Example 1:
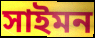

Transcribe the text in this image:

সাইমন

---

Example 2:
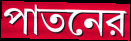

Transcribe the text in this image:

পাতনের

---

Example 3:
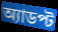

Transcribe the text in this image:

অ্যাডপ্ট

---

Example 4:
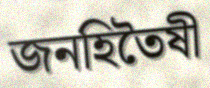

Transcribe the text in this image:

জনহিতৈষী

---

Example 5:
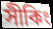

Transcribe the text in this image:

সীকিং